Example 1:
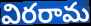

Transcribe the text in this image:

విరరామ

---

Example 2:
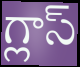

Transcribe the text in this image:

గ్లాస్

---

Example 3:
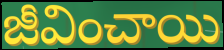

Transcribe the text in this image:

జీవించాయి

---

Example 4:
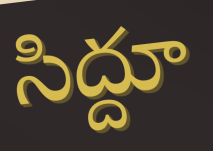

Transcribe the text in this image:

సిద్దూ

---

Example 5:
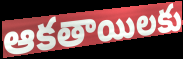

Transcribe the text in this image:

ఆకతాయిలకు